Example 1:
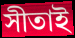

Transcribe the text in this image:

সীতাই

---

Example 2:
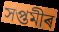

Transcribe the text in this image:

সপ্তমীৰ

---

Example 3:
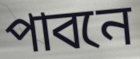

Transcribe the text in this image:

পাবনে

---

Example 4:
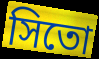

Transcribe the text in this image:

সিতো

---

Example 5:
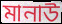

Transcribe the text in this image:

মানাউ